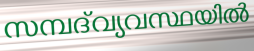
സമ്പദ്‌വ്യവസ്ഥയിൽ